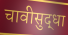
चावीसुद्धा